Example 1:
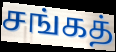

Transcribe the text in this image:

சங்கத்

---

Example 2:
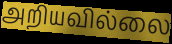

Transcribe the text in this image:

அறியவில்லை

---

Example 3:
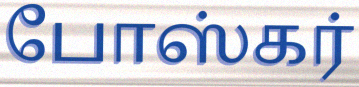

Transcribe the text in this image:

போஸ்கர்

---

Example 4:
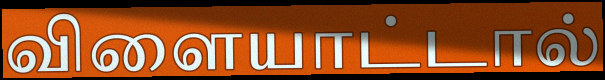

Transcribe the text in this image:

விளையாட்டால்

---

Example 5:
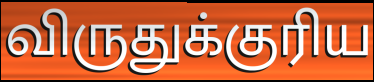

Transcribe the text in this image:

விருதுக்குரிய